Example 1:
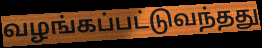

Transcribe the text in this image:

வழங்கப்பட்டுவந்தது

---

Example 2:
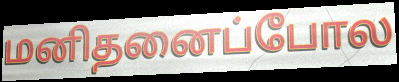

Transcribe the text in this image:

மனிதனைப்போல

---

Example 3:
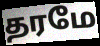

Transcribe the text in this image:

தரமே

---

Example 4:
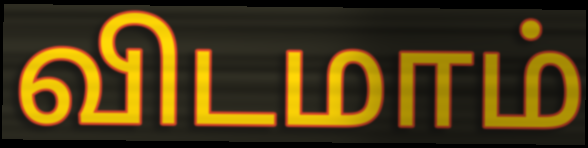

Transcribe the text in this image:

விடமாம்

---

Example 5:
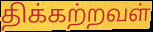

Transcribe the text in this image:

திக்கற்றவள்